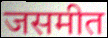
जसमीत